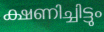
ക്ഷണിച്ചിട്ടും